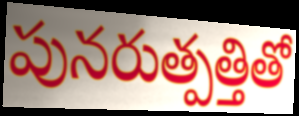
పునరుత్పత్తితో